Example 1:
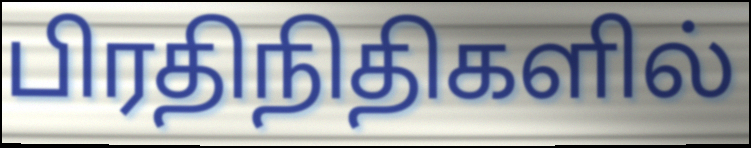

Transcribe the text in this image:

பிரதிநிதிகளில்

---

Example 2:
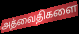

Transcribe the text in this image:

அத்வைதிகளை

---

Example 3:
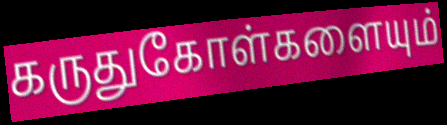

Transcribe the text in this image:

கருதுகோள்களையும்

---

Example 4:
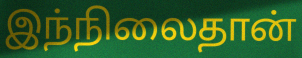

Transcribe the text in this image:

இந்நிலைதான்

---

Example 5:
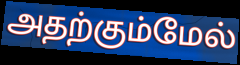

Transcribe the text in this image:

அதற்கும்மேல்